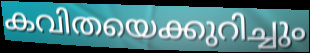
കവിതയെക്കുറിച്ചും